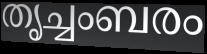
തൃച്ചംബരം